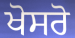
ਖੋਸਰੋ